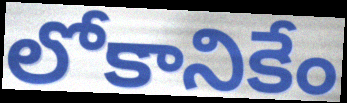
లోకానికేం